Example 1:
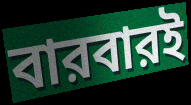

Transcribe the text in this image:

বারবারই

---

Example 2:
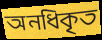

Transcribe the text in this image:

অনধিকৃত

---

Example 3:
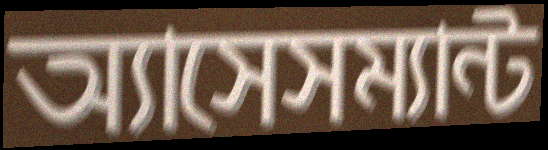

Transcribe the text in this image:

অ্যাসেসম্যান্ট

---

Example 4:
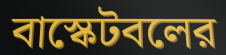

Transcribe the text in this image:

বাস্কেটবলের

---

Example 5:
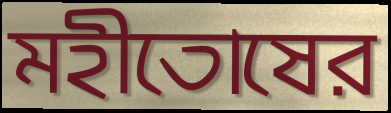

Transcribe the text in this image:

মহীতোষের